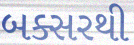
બક્સરથી